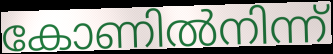
കോണിൽനിന്ന്